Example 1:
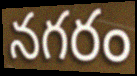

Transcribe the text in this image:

నగరం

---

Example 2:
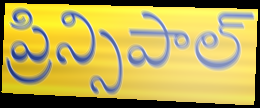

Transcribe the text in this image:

ప్రిన్సిపాల్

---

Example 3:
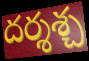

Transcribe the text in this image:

దర్శశ్చ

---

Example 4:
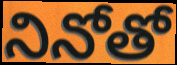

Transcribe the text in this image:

నినోతో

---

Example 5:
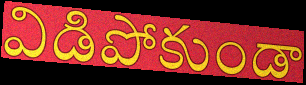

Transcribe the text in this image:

విడిపోకుండా